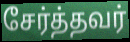
சேர்த்தவர்